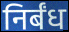
निर्बंध